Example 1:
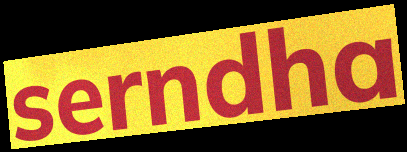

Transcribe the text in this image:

serndha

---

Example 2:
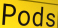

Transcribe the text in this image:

Pods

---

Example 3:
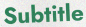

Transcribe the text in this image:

Subtitle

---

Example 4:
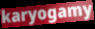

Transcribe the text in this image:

karyogamy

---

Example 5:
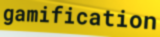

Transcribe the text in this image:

gamification